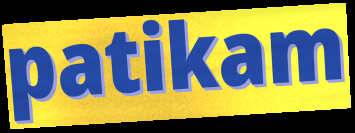
patikam